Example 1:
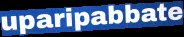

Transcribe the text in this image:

uparipabbate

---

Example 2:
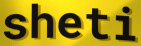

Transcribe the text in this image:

sheti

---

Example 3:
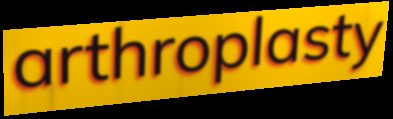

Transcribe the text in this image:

arthroplasty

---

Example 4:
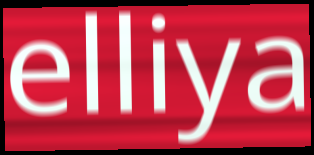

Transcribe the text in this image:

elliya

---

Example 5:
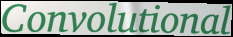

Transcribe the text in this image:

Convolutional